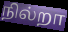
நில்றா